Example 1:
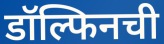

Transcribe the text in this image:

डॉल्फिनची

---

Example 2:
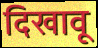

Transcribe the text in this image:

दिखावू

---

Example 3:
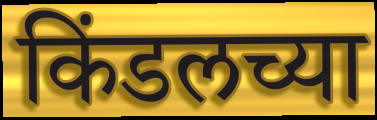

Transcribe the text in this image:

किंडलच्या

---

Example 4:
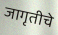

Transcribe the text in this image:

जागृतीचे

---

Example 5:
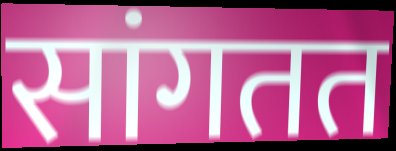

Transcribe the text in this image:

सांगतत